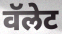
वॅलेट